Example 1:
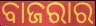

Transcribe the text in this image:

ବାଜରାର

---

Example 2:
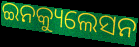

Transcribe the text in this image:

ଇନକ୍ୟୁଲେସନ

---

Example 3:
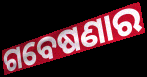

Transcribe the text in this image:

ଗବେଷଣାର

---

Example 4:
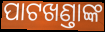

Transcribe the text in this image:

ପାଟଖଣ୍ତାଙ୍କ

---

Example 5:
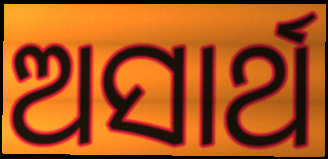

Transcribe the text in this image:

ଅସାର୍ଥ